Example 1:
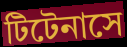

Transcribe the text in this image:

টিটেনাসে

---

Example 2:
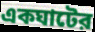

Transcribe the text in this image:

একঘাটের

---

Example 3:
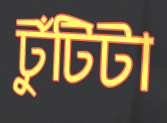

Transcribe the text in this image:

টুঁটিটা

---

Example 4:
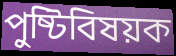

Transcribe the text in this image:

পুষ্টিবিষয়ক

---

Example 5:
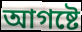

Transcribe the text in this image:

আগষ্টে